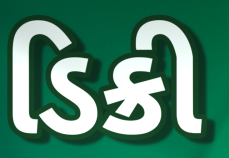
ડિક્રી